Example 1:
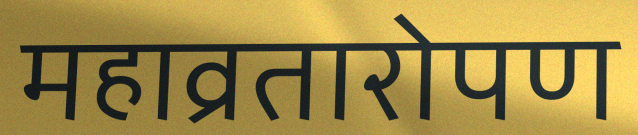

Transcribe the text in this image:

महाव्रतारोपण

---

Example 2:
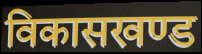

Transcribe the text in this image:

विकासखण्ड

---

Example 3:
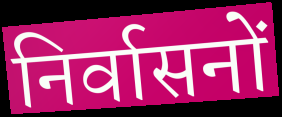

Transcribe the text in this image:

निर्वासनों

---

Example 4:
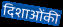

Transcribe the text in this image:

दिशाओंकी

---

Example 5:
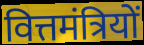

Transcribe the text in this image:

वित्तमंत्रियों